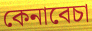
কেনাবেচা